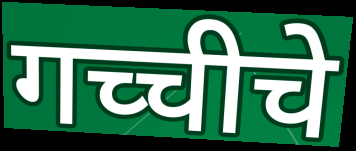
गच्चीचे